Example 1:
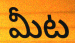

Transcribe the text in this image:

మీట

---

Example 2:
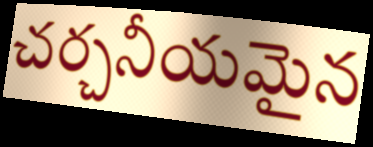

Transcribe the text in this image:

చర్చనీయమైన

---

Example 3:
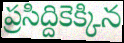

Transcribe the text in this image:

ప్రసిద్దికెక్కిన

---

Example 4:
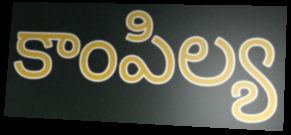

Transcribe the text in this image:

కాంపిల్య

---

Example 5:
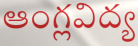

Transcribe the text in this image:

ఆంగ్లవిద్య